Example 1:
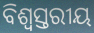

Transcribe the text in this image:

ବିଶ୍ବସ୍ତରୀୟ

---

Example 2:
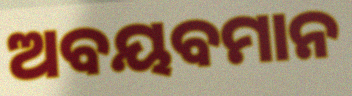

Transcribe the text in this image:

ଅବୟବମାନ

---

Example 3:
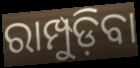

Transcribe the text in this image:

ରାମ୍ପୁଡ଼ିବା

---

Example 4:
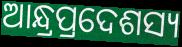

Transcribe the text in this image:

ଆନ୍ଧ୍ରପ୍ରଦେଶସ୍ୟ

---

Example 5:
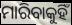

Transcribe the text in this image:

ମାରିବାକୁହିଁ